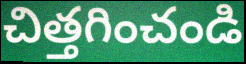
చిత్తగించండి